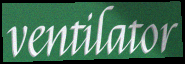
ventilator